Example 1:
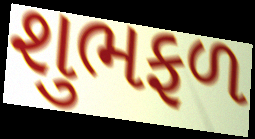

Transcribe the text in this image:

શુભફળ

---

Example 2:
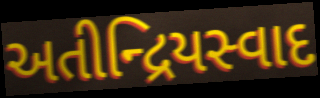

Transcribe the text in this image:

અતીન્દ્રિયસ્વાદ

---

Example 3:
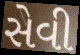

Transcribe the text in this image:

સેવી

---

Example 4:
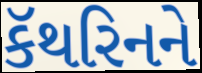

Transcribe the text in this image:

કૅથરિનને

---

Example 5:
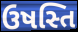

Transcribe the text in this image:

ઉષસ્તિ